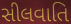
સીલવાતિ